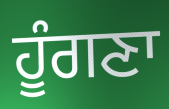
ਹੂੰਗਣਾ